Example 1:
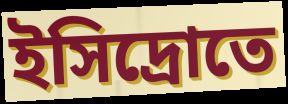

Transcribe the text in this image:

ইসিদ্রোতে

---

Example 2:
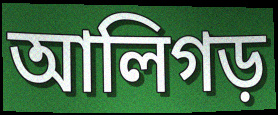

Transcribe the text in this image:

আলিগড়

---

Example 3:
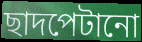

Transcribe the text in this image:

ছাদপেটানো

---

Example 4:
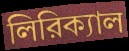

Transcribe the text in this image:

লিরিক্যাল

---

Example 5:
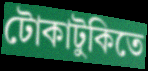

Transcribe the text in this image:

টোকাটুকিতে